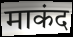
माकंद